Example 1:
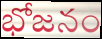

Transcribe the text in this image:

భోజనం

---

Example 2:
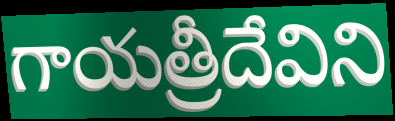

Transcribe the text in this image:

గాయత్రీదేవిని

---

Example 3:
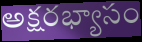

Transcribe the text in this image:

అక్షరభ్యాసం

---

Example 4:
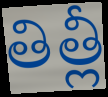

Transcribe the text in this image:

తిత్లీ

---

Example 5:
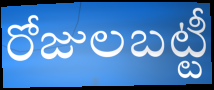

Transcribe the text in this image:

రోజులబట్టీ